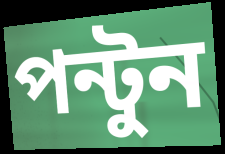
পন্টুন